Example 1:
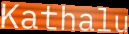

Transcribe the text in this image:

Kathalu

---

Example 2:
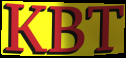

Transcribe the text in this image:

KBT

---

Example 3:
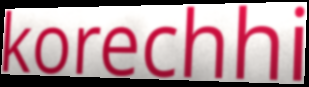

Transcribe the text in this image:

korechhi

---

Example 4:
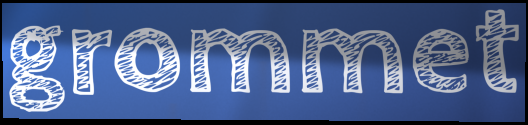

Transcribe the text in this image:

grommet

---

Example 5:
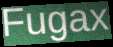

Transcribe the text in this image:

Fugax